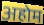
अहोम